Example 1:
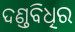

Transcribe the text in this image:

ଦଣ୍ଡବିଧିର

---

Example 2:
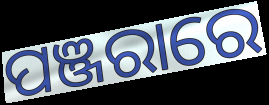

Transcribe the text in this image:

ପଞ୍ଜରାରେ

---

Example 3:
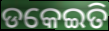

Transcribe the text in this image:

ଡକେଇତି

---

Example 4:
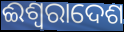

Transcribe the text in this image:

ଈଶ୍ୱରାଦେଶ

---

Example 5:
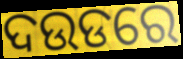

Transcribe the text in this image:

ଦଉଡରେ